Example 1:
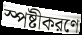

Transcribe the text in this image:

স্পষ্টীকরণে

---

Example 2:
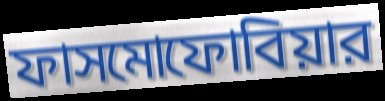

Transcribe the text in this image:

ফাসমোফোবিয়ার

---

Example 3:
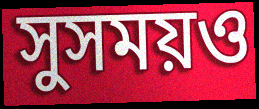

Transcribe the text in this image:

সুসময়ও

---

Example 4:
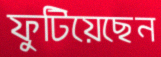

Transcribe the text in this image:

ফুটিয়েছেন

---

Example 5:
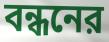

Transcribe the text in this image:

বন্ধনের